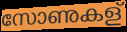
സോണുകള്